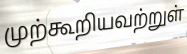
முற்கூறியவற்றுள்